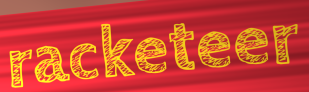
racketeer